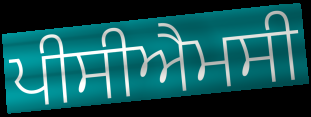
ਪੀਸੀਐਮਸੀ